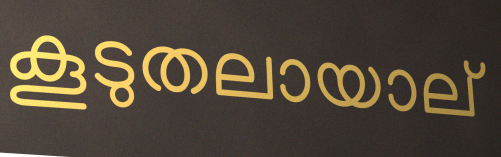
കൂടുതലായാല്